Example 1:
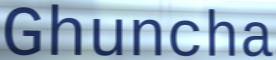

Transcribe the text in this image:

Ghuncha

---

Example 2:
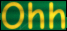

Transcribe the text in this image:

Ohh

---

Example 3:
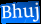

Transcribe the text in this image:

Bhuj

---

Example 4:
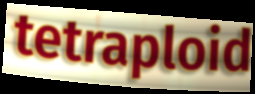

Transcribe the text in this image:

tetraploid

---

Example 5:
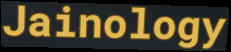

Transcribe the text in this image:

Jainology